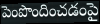
పెంపొందించడంపై